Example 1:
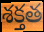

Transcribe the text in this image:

శక్తత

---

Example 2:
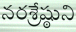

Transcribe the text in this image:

నరశ్రేష్ఠుని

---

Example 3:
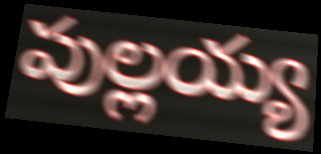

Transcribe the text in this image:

పుల్లయ్య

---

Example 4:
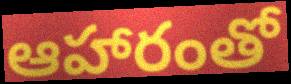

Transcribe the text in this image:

ఆహారంతో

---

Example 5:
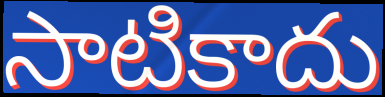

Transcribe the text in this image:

సాటికాదు